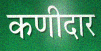
कणीदार